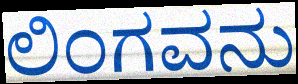
ಲಿಂಗವನು